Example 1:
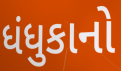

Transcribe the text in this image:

ધંધુકાનો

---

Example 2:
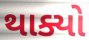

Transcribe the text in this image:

થાક્યો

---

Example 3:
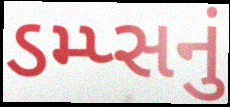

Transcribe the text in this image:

ડમ્પ્સનું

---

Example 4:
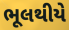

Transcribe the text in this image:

ભૂલથીયે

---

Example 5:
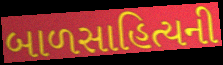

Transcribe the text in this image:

બાળસાહિત્યની